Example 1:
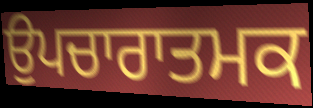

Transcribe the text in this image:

ਉਪਚਾਰਾਤਮਕ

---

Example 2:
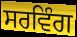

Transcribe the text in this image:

ਸਰਵਿੰਗ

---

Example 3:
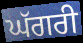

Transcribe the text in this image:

ਘੱਗਰੀ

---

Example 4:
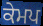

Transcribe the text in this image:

ਕੇਮਪ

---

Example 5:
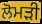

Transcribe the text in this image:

ਲੋਮੜੀ